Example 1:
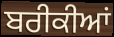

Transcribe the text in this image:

ਬਰੀਕੀਆਂ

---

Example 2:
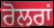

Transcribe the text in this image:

ਰੋਲਰਾਂ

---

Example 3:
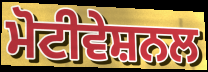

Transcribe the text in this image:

ਮੋਟੀਵੇਸ਼ਨਲ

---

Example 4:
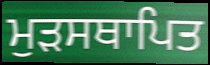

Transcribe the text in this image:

ਮੁੜਸਥਾਪਿਤ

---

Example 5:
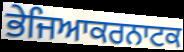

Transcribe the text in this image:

ਭੇਜਿਆਕਰਨਾਟਕ